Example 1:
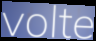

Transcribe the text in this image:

volte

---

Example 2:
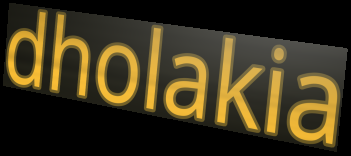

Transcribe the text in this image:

dholakia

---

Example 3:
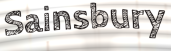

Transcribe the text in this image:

Sainsbury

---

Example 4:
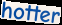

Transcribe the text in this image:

hotter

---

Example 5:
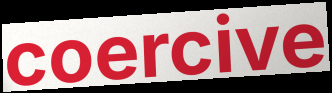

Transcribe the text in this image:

coercive